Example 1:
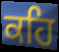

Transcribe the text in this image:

ਕਹਿ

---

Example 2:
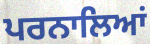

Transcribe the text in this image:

ਪਰਨਾਲਿਆਂ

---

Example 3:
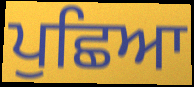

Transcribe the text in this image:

ਪੁਛਿਆ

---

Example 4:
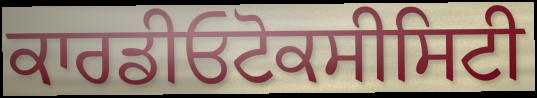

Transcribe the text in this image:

ਕਾਰਡੀਓਟੋਕਸੀਸਿਟੀ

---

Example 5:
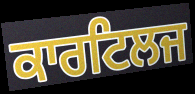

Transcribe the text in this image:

ਕਾਰਟਿਲਜ